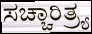
ಸಚ್ಚಾರಿತ್ರ್ಯ